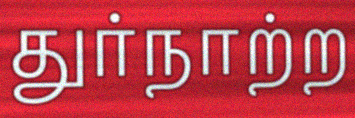
துர்நாற்ற